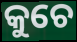
କୁଚେ